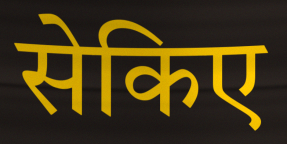
सेकिए